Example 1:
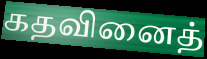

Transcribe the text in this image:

கதவினைத்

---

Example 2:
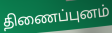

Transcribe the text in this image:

திணைப்புனம்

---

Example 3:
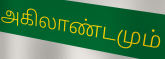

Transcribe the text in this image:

அகிலாண்டமும்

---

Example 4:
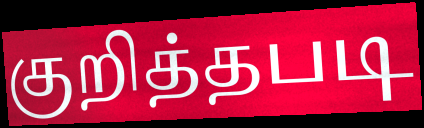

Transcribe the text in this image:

குறித்தபடி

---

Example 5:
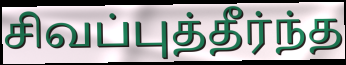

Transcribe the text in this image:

சிவப்புத்தீர்ந்த